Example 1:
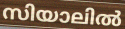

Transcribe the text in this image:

സിയാലിൽ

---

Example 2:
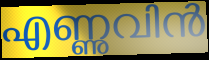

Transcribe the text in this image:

എണ്ണുവിൻ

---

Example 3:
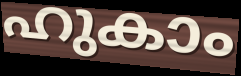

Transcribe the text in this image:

ഹുകാം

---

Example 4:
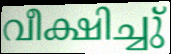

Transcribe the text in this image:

വീക്ഷിച്ചു്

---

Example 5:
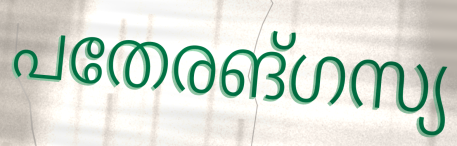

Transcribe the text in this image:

പതേരങ്ഗസ്യ